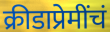
क्रीडाप्रेमींचं